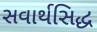
સવાર્થસિદ્ધ